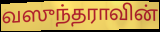
வஸுந்தராவின்